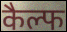
कैल्फ